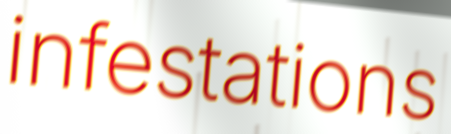
infestations